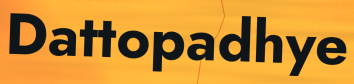
Dattopadhye